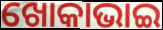
ଖୋକାଭାଇ